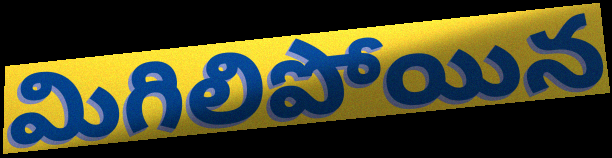
మిగిలిపోయిన